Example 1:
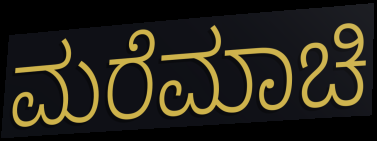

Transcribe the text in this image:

ಮರೆಮಾಚಿ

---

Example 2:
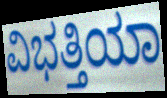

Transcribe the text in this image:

ವಿಭತ್ತಿಯಾ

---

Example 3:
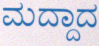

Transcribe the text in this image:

ಮದ್ದಾದ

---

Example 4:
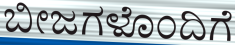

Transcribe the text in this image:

ಬೀಜಗಳೊಂದಿಗೆ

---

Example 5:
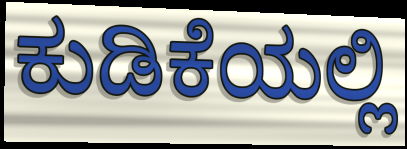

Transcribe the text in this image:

ಕುಡಿಕೆಯಲ್ಲಿ